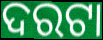
ଦରଟା